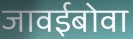
जावईबोवा